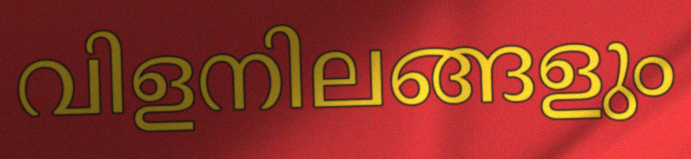
വിളനിലങ്ങളും